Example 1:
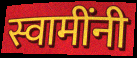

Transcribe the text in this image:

स्वामींनी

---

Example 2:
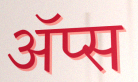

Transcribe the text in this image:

ॲप्स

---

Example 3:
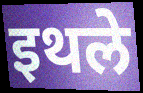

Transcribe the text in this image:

इथले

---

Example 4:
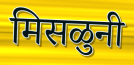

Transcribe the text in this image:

मिसळुनी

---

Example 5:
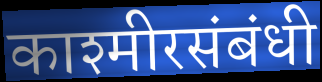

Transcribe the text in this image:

काश्मीरसंबंधी